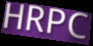
HRPC